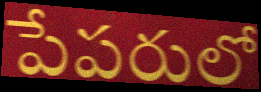
పేపరులో